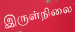
இருள்நிலை